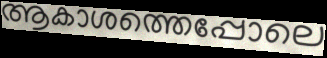
ആകാശത്തെപ്പോലെ